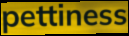
pettiness